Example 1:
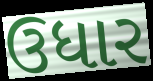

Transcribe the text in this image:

ઉધાર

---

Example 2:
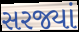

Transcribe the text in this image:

સરજ્યાં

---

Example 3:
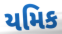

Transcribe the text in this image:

યમિક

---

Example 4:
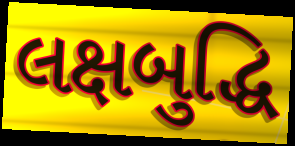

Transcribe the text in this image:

લક્ષબુદ્ધિ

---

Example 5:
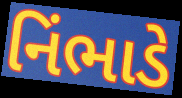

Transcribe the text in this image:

નિંભાડે